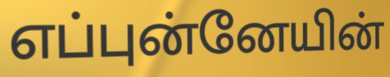
எப்புன்னேயின்